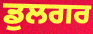
ਡੁਲਗਰ